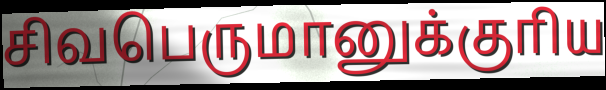
சிவபெருமானுக்குரிய